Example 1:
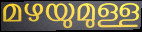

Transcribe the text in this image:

മഴയുമുള്ള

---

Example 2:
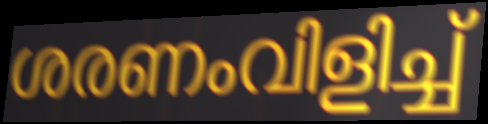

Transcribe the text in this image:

ശരണംവിളിച്ച്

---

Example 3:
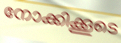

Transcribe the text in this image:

നോക്കിക്കൂടെ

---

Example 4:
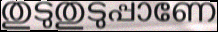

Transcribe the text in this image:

തുടുതുടുപ്പാണേ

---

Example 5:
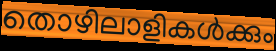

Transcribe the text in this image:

തൊഴിലാളികൾക്കും